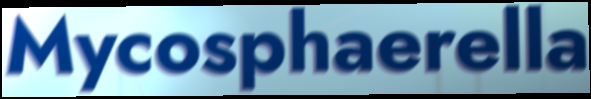
Mycosphaerella